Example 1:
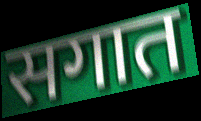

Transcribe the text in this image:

सगात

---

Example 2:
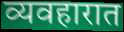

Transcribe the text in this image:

व्यवहारात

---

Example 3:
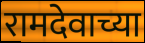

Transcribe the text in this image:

रामदेवाच्या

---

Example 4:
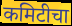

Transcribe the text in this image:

कमिटीचा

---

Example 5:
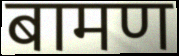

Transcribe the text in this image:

बामण